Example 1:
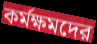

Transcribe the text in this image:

কর্মক্ষমদের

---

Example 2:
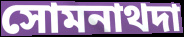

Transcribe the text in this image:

সোমনাথদা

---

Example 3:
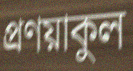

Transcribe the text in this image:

প্রণয়াকুল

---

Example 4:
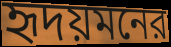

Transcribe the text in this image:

হৃদয়মনের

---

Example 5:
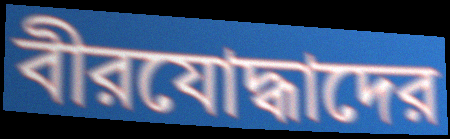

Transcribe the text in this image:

বীরযোদ্ধাদের